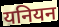
यनियन